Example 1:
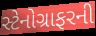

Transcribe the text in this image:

સ્ટેનોગ્રાફરની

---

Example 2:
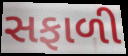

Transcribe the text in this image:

સફાળી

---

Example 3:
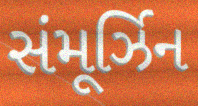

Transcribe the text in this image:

સંમૂર્ઝિન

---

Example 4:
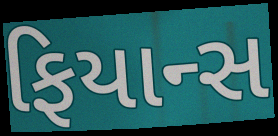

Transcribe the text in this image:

ફિયાન્સ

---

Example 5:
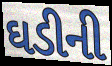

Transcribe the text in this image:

ઘડીની